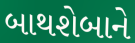
બાથશેબાને